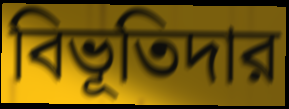
বিভূতিদার